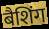
बैशिंग